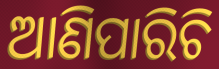
ଆଣିପାରିଚି